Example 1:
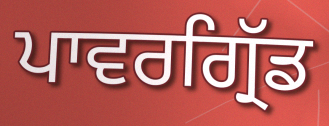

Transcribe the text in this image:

ਪਾਵਰਗ੍ਰਿੱਡ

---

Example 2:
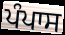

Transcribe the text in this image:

ਪੰਪਾਸ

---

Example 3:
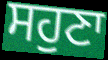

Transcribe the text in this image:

ਸਹੁਣਾ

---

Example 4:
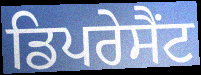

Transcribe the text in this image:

ਡਿਪਰੇਸੈਂਟ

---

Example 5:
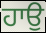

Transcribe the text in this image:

ਹਾਉ